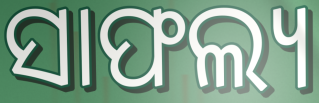
ସାଫଲ୍ଯ